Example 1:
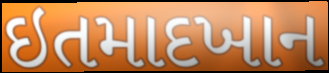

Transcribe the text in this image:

ઇતમાદખાન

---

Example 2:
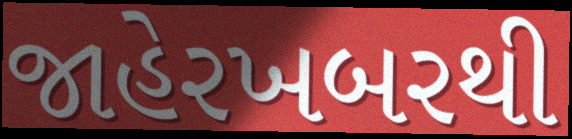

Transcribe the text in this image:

જાહેરખબરથી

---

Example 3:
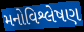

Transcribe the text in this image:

મનોવિશ્લેષણ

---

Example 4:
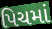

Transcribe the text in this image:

પિચમાં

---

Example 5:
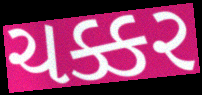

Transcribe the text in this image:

ચક્કર